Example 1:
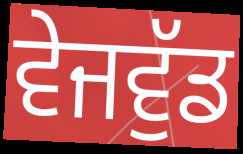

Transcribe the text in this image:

ਵੇਜਵੁੱਡ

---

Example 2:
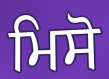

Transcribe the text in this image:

ਮਿਸੋ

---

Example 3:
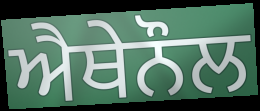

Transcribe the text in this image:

ਐਥੇਨੌਲ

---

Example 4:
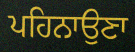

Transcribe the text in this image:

ਪਹਿਨਾਉਣਾ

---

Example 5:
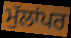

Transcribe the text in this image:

ਮੁੱਲਾਂਪਰ